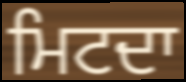
ਮਿਟਦਾ